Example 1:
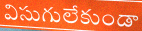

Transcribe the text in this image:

విసుగులేకుండా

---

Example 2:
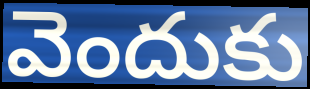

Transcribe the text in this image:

వెందుకు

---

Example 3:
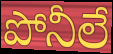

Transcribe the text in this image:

పోనీలే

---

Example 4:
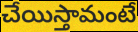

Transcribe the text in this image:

చేయిస్తామంటే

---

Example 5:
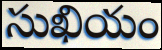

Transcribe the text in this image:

సుఖియం